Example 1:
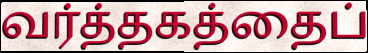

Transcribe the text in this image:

வர்த்தகத்தைப்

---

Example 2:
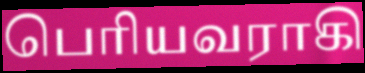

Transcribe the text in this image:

பெரியவராகி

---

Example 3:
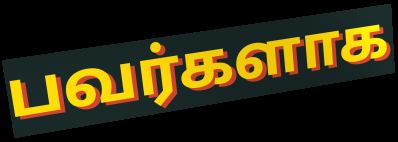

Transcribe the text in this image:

பவர்களாக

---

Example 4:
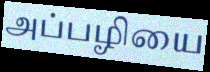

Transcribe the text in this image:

அப்பழியை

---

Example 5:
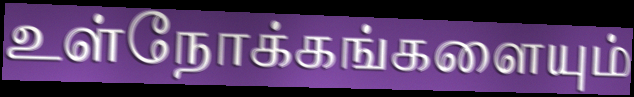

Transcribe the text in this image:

உள்நோக்கங்களையும்